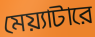
মেয়্যাটারে